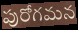
పురోగమన